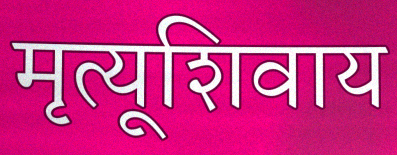
मृत्यूशिवाय